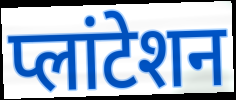
प्लांटेशन